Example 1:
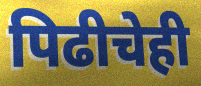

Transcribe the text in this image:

पिढीचेही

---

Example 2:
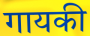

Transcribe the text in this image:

गायकी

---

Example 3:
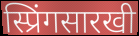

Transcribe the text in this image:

स्प्रिंगसारखी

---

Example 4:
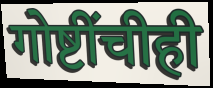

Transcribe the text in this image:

गोष्टींचीही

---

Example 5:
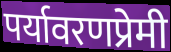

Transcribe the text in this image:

पर्यावरणप्रेमी